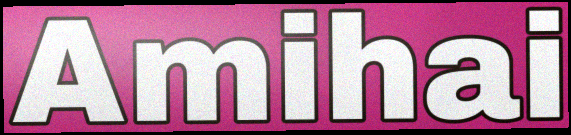
Amihai